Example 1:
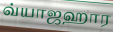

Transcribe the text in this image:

வ்யாஜஹார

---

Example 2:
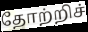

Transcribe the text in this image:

தோற்றிச்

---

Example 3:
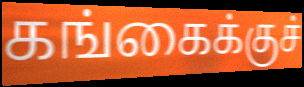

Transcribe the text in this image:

கங்கைக்குச்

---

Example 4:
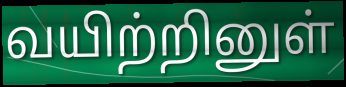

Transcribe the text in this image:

வயிற்றினுள்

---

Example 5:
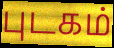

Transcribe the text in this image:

புடகம்